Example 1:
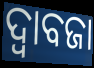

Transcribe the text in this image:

ଦ୍ୱାବଜା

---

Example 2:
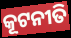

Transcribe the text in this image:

କୂଟନୀତି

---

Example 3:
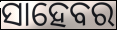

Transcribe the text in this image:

ସାହେବର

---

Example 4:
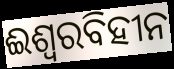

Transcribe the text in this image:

ଈଶ୍ୱରବିହୀନ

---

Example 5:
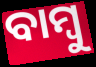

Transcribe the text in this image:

ବାମ୍ବୁ